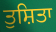
ਤੁਸ਼ਿਤਾ